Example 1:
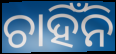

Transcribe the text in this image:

ଚାହିଁନି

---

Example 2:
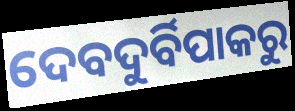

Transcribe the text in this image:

ଦେବଦୁର୍ବିପାକରୁ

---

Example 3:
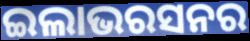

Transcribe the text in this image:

ଇଲାଭରସନର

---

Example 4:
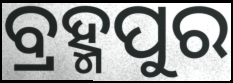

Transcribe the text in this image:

ବ୍ରହ୍ମପୁର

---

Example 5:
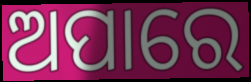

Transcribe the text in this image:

ଅପାରେ